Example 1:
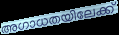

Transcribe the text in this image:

അഗാധതയിലേക്ക്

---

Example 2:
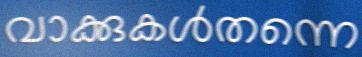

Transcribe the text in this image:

വാക്കുകൾതന്നെ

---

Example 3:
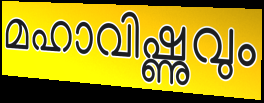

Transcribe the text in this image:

മഹാവിഷ്ണുവും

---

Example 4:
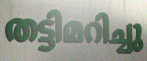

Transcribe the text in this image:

തട്ടിമറിച്ചു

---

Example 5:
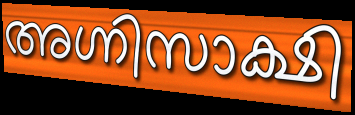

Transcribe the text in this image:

അഗ്നിസാക്ഷി